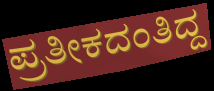
ಪ್ರತೀಕದಂತಿದ್ದ